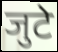
जुटे